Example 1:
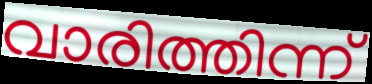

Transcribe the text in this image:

വാരിത്തിന്ന്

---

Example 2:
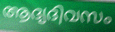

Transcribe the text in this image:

ആദ്യദിവസം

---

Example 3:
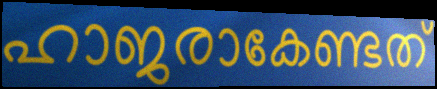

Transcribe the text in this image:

ഹാജരാകേണ്ടത്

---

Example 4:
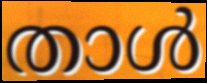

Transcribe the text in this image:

താൾ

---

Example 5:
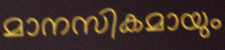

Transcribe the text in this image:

മാനസികമായും